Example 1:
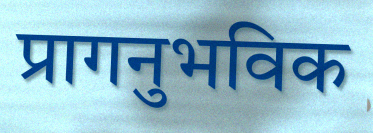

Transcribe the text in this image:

प्रागनुभविक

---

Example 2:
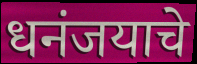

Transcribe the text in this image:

धनंजयाचे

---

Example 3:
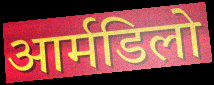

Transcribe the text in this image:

आर्मडिलो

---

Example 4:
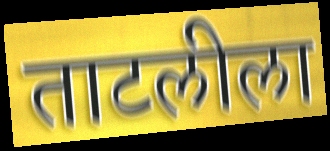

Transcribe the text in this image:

ताटलीला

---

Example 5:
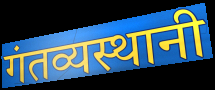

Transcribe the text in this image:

गंतव्यस्थानी